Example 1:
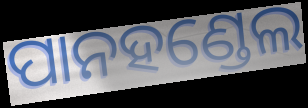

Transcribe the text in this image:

ପାନହଣ୍ଡେଲ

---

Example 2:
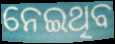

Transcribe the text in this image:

ନେଇଥିବ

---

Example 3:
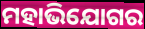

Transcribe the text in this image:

ମହାଭିଯୋଗର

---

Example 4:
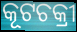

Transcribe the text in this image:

କୂଟଚକ୍ରୀ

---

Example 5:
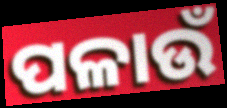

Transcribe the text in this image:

ପଳାଉଁ